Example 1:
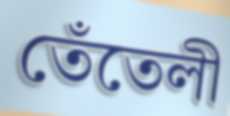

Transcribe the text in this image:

তেঁতেলী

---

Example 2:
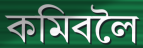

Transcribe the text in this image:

কমিবলৈ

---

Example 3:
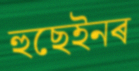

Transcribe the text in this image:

হুছেইনৰ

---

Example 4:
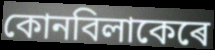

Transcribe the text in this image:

কোনবিলাকেৰে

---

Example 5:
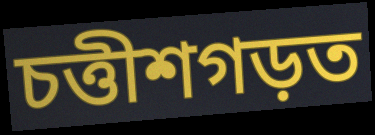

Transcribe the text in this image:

চত্তীশগড়ত